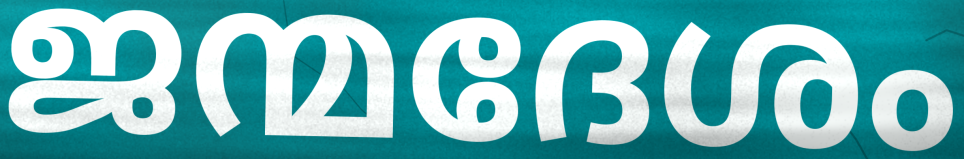
ജന്മദേശം